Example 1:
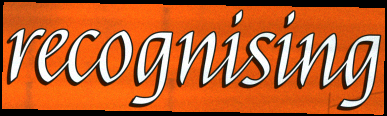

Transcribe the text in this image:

recognising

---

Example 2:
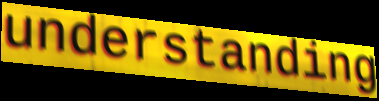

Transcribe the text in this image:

understanding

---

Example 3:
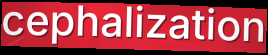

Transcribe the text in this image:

cephalization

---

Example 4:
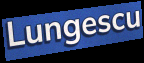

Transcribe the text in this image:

Lungescu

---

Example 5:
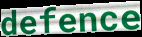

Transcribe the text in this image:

defence